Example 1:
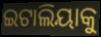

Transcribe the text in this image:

ଇଟାଲିୟାକୁ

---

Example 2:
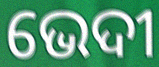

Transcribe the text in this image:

ଭେଦୀ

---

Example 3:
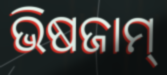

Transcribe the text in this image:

ଭିଷଜାମ୍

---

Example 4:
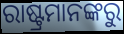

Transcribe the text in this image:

ରାଷ୍ଟ୍ରମାନଙ୍କରୁ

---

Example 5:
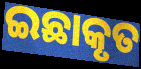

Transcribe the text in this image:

ଇଛାକୃତ